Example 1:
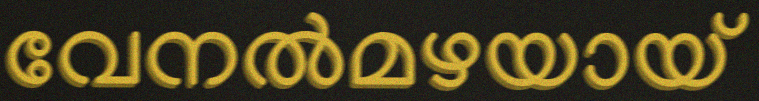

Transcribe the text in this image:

വേനൽമഴയായ്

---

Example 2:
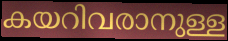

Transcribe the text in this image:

കയറിവരാനുള്ള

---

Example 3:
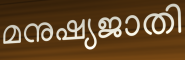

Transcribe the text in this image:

മനുഷ്യജാതി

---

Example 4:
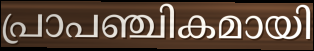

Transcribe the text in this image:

പ്രാപഞ്ചികമായി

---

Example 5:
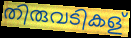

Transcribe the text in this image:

തിരുവടികള്